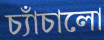
চ্যাঁচালো